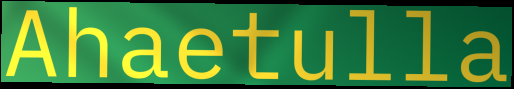
Ahaetulla